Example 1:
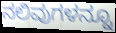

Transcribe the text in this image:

ನಲಿವುಗಳನ್ನೂ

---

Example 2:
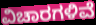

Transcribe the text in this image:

ವಿಚಾರಗಳಿವೆ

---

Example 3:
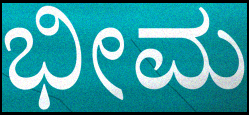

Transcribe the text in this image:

ಭೀಮ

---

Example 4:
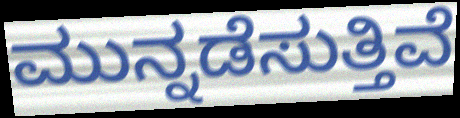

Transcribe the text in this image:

ಮುನ್ನಡೆಸುತ್ತಿವೆ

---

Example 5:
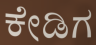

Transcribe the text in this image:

ಕೇಡಿಗ